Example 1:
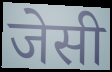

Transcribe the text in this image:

जेसी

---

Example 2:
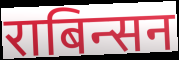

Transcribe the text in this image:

राबिन्सन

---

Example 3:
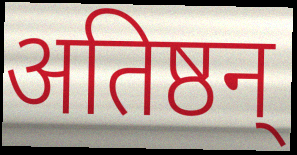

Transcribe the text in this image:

अतिष्ठन्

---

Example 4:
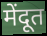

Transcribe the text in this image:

मेंदूत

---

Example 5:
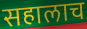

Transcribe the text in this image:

सहालाच